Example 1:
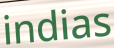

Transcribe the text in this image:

indias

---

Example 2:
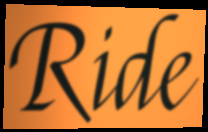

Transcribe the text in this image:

Ride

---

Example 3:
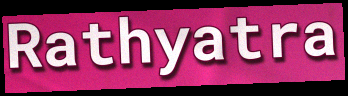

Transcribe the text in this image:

Rathyatra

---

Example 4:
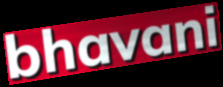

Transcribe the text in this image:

bhavani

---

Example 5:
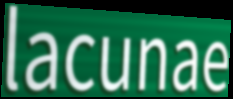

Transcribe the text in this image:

lacunae